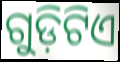
ଗୁଡ଼ିଟିଏ